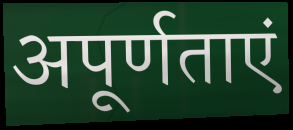
अपूर्णताएं